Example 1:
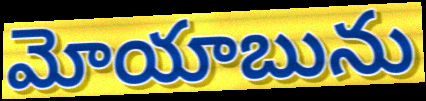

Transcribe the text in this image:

మోయాబును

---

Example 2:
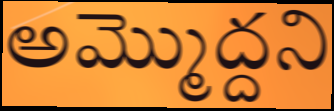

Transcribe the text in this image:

అమ్మొద్దని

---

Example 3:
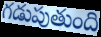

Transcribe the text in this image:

గడుపుతుంది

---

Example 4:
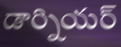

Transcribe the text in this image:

డార్నియర్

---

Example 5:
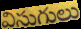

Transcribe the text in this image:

విసుగులు